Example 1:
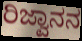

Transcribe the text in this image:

ರಿಜ್ವಾನನ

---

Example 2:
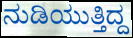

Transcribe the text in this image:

ನುಡಿಯುತ್ತಿದ್ದ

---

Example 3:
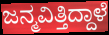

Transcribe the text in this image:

ಜನ್ಮವಿತ್ತಿದ್ದಾಳೆ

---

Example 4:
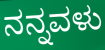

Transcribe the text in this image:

ನನ್ನವಳು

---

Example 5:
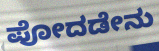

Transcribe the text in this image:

ಪೋದಡೇನು